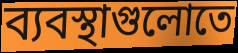
ব্যবস্থাগুলোতে